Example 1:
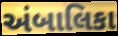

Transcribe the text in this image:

અંબાલિકા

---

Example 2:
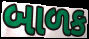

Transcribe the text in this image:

બાળક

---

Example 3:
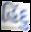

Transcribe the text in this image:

હિંદુ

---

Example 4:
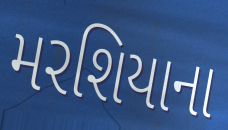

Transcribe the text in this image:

મરશિયાના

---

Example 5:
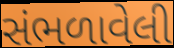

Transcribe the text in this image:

સંભળાવેલી